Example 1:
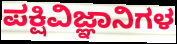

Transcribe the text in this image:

ಪಕ್ಷಿವಿಜ್ಞಾನಿಗಳ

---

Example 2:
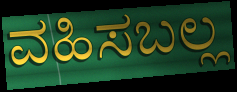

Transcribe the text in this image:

ವಹಿಸಬಲ್ಲ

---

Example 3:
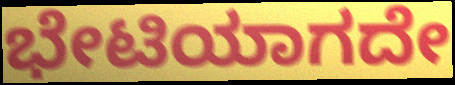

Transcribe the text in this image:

ಭೇಟಿಯಾಗದೇ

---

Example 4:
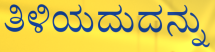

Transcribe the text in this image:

ತಿಳಿಯದುದನ್ನು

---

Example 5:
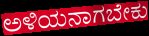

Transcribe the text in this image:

ಅಳಿಯನಾಗಬೇಕು